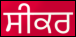
ਸੀਕਰ